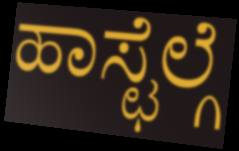
ಹಾಸ್ಟೆಲ್ಗೆ